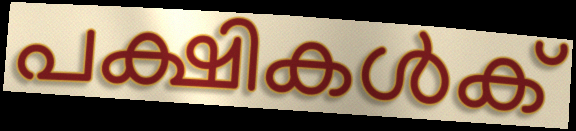
പക്ഷികൾക്